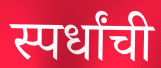
स्पर्धांची